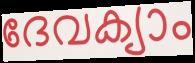
ദേവക്യാം